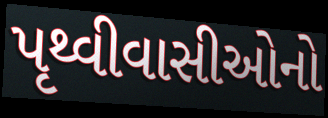
પૃથ્વીવાસીઓનો